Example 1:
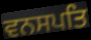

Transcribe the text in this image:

ਵਨਸਪਤਿ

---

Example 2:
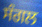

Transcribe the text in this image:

ਸੰਗਲ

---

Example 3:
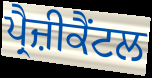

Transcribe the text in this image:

ਪ੍ਰੈਜ਼ੀਕੈਂਟਲ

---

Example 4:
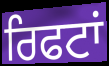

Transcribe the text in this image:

ਰਿਫਟਾਂ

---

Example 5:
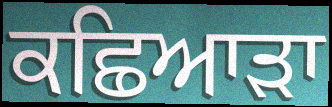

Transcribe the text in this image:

ਕਛਿਆੜਾ